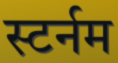
स्टर्नम